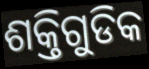
ଶକ୍ତିଗୁଡିକ